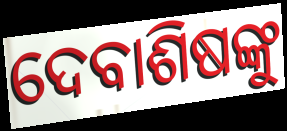
ଦେବାଶିଷଙ୍କୁ